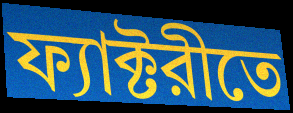
ফ্যাক্টরীতে